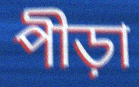
পীড়া